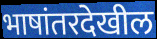
भाषांतरदेखील